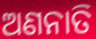
ଅଣନାତି